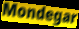
Mondegar